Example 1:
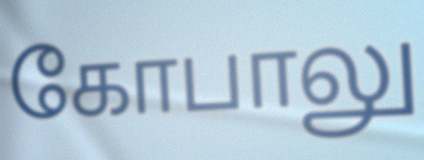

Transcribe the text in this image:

கோபாலு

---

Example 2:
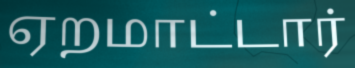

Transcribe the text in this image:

ஏறமாட்டார்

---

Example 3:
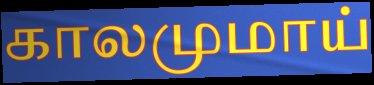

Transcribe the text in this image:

காலமுமாய்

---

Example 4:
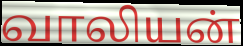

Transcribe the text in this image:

வாலியன்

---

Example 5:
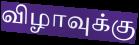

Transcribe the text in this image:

விழாவுக்கு